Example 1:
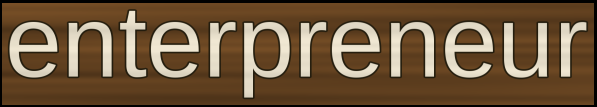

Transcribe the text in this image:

enterpreneur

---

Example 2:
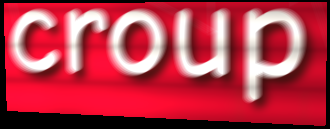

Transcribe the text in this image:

croup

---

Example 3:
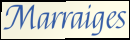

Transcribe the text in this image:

Marraiges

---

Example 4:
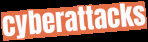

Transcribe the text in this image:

cyberattacks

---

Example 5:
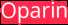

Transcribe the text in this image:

Oparin